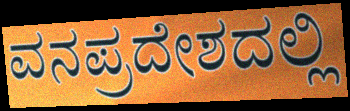
ವನಪ್ರದೇಶದಲ್ಲಿ